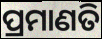
ପ୍ରମାଣତି